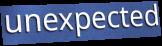
unexpected